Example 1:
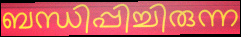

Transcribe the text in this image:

ബന്ധിപ്പിച്ചിരുന്ന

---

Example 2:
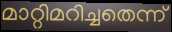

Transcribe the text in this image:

മാറ്റിമറിച്ചതെന്ന്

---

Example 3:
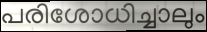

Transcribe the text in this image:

പരിശോധിച്ചാലും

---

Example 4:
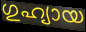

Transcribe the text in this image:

ഗുഹ്യായ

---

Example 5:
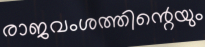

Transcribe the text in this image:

രാജവംശത്തിന്റെയും